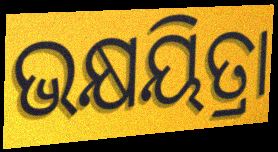
ଭକ୍ଷୟିତ୍ରା